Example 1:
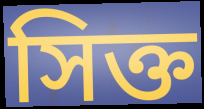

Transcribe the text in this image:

সিক্ত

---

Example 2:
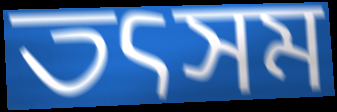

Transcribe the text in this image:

তৎসম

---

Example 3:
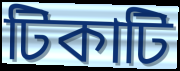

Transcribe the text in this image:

টিকাটি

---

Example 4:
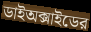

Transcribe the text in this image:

ডাইঅক্সাইডের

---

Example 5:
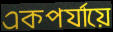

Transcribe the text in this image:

একপর্যায়ে